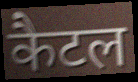
कैटल